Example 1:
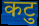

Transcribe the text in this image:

कटु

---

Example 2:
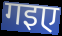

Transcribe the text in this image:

गइए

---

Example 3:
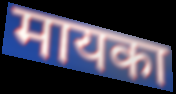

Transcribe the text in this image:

मायका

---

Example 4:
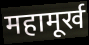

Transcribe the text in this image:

महामूर्ख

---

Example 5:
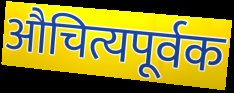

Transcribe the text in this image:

औचित्यपूर्वक